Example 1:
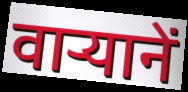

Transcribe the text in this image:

वार्‍यानें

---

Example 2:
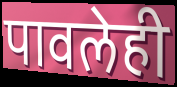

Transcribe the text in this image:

पावलेही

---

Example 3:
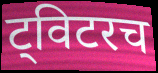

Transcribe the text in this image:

ट्विटरच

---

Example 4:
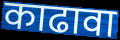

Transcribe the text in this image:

काढावा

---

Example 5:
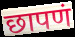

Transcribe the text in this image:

छापणं